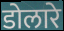
डोलारे